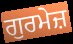
ਗੁਰਮੇਜ਼